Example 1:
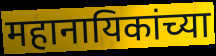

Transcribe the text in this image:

महानायिकांच्या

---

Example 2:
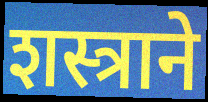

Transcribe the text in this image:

शस्त्राने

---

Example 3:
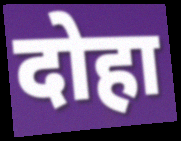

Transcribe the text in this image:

दोहा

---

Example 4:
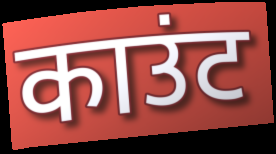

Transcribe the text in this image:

काउंट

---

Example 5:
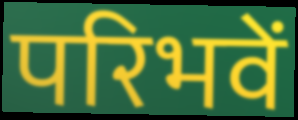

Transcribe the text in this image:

परिभवें